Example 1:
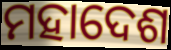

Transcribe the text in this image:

ମହାଦେଶ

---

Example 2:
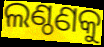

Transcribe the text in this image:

ଲଣ୍ଠଣକୁ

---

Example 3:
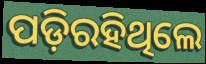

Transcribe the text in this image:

ପଡ଼ିରହିଥିଲେ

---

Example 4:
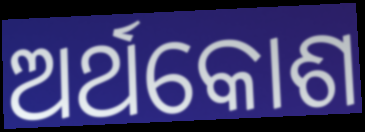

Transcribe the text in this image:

ଅର୍ଥକୋଶ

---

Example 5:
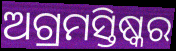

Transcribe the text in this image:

ଅଗ୍ରମସ୍ତିଷ୍କର